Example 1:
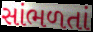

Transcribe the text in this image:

સાંભળતાં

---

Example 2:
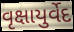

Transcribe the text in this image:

વૃક્ષાયુર્વેદ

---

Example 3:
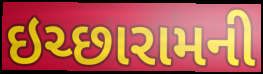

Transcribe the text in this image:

ઇચ્છારામની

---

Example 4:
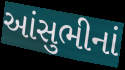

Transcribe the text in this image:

આંસુભીનાં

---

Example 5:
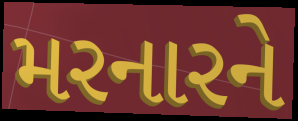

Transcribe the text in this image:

મરનારને